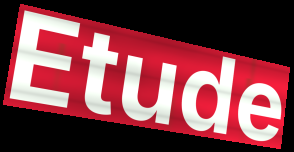
Etude